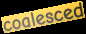
coalesced